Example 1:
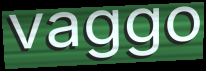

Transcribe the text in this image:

vaggo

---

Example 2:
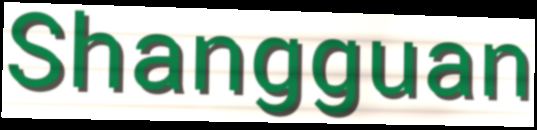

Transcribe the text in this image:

Shangguan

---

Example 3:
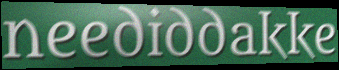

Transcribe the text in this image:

neediddakke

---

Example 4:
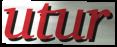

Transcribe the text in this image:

utur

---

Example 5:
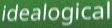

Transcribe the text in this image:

idealogical